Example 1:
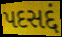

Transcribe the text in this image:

પદસદ્દં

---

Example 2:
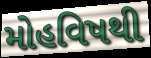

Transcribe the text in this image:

મોહવિષથી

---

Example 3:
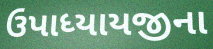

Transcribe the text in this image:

ઉપાધ્યાયજીના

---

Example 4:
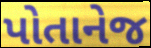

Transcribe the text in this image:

પોતાનેજ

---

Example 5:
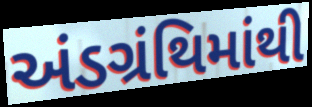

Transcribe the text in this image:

અંડગ્રંથિમાંથી